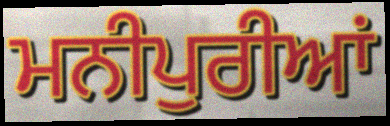
ਮਨੀਪੁਰੀਆਂ